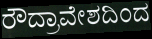
ರೌದ್ರಾವೇಶದಿಂದ